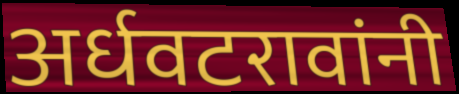
अर्धवटरावांनी